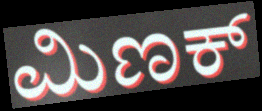
ಮಿಣಕ್